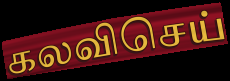
கலவிசெய்